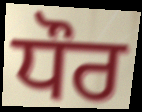
ਧੌਰ